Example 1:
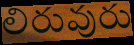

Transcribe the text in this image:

లిరువురు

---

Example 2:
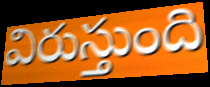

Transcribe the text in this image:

విరుస్తుంది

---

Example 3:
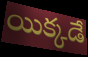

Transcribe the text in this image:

యిక్కడే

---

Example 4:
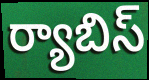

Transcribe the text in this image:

ర్యాబిస్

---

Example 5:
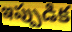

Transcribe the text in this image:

ఇప్పుడిక